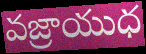
వజ్రాయుధ